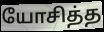
யோசித்த